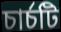
চার্চটি